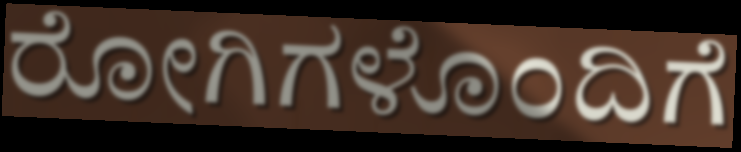
ರೋಗಿಗಳೊಂದಿಗೆ